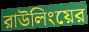
রাউলিংয়ের